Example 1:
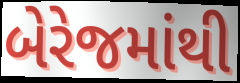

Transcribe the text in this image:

બેરેજમાંથી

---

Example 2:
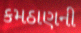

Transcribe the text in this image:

કમઠાણની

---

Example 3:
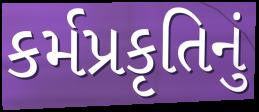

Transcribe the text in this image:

કર્મપ્રકૃતિનું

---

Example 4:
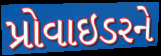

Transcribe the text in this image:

પ્રોવાઇડરને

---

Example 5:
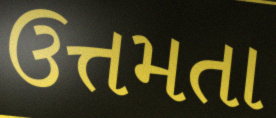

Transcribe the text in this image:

ઉત્તમતા